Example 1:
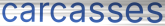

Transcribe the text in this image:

carcasses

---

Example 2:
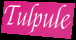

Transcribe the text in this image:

Tulpule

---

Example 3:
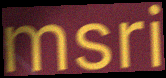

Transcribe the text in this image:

msri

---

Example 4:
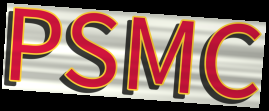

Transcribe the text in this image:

PSMC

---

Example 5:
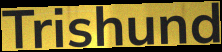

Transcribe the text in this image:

Trishund